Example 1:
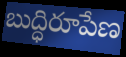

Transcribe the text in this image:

బుద్ధిరూపేణ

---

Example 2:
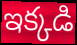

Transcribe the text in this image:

ఇక్కడి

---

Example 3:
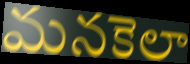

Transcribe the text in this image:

మనకెలా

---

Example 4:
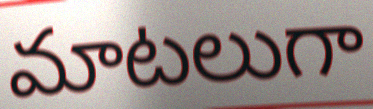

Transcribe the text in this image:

మాటలుగా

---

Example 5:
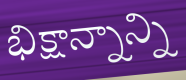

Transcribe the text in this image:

భిక్షాన్నాన్ని